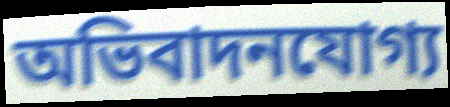
অভিবাদনযোগ্য